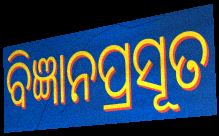
ବିଜ୍ଞାନପ୍ରସୂତ